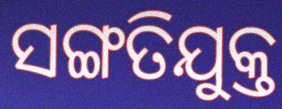
ସଙ୍ଗତିଯୁକ୍ତ